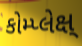
કોમ્પ્લેક્ષ્